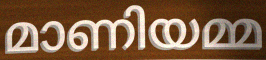
മാണിയമ്മ